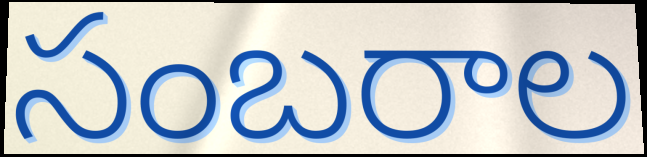
సంబరాల